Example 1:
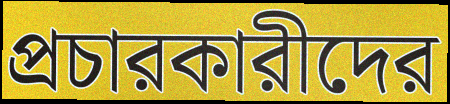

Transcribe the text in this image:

প্রচারকারীদের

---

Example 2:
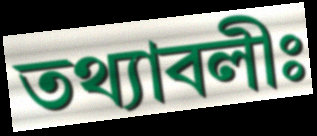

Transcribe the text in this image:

তথ্যাবলীঃ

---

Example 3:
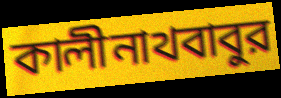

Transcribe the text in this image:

কালীনাথবাবুর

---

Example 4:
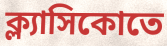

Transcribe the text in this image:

ক্ল্যাসিকোতে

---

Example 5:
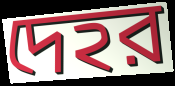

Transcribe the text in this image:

দেহর